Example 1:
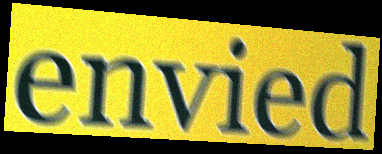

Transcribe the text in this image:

envied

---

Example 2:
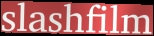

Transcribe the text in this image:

slashfilm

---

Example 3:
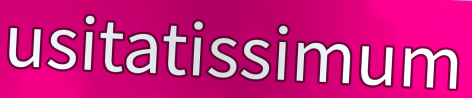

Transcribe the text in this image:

usitatissimum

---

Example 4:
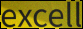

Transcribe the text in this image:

excell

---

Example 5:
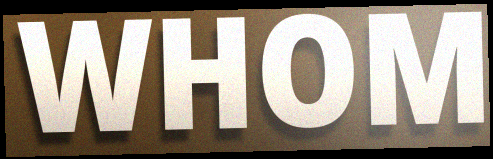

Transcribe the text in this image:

WHOM